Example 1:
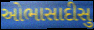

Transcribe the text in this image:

ઓભાસાદીસુ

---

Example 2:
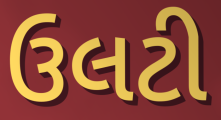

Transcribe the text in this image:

ઉલટી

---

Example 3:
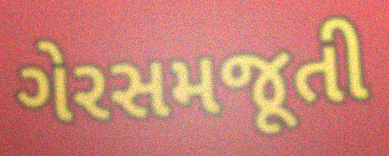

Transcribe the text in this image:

ગેરસમજૂતી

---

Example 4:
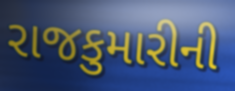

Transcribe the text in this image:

રાજકુમારીની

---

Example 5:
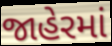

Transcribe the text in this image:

જાહેરમાં